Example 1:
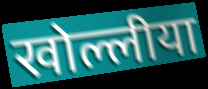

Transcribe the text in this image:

खोल्लीया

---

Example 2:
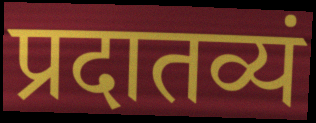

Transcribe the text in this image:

प्रदातव्यं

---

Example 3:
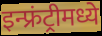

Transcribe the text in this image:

इन्फ्रंट्रीमध्ये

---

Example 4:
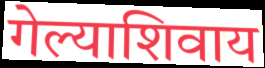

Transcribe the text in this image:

गेल्याशिवाय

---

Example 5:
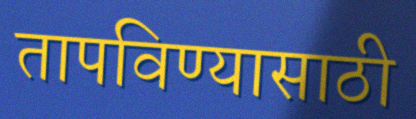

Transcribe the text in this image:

तापविण्यासाठी